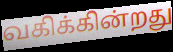
வகிக்கின்றது